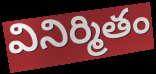
వినిర్మితం